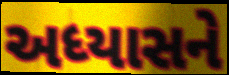
અધ્યાસને